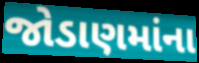
જોડાણમાંના